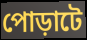
পোড়াটে